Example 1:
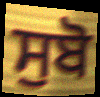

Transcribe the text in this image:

ਸੁਬੋ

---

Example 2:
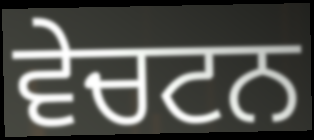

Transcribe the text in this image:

ਵੇਚਟਨ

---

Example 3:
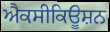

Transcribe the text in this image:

ਐਕਸੀਕਿਊਸ਼ਨ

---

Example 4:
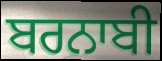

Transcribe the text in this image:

ਬਰਨਾਬੀ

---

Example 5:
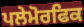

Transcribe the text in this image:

ਪਲੇਮੋਰਫਿਕ